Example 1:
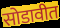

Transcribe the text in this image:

सोडावीत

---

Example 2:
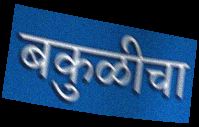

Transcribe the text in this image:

बकुळीचा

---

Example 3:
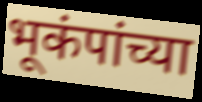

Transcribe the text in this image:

भूकंपांच्या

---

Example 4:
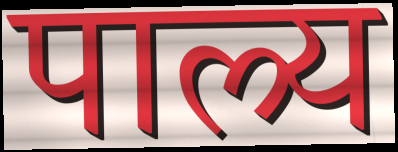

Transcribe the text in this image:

पाल्य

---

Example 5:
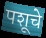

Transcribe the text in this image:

पशूचे